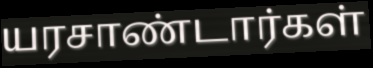
யரசாண்டார்கள்